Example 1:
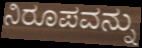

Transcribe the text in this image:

ನಿರೂಪವನ್ನು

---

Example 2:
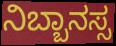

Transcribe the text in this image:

ನಿಬ್ಬಾನಸ್ಸ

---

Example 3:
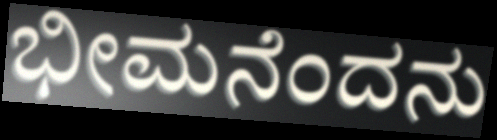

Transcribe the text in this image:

ಭೀಮನೆಂದನು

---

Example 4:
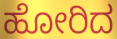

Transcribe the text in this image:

ಹೋರಿದ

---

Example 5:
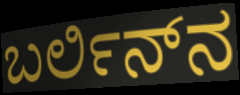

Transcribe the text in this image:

ಬರ್ಲಿನ್‍ನ